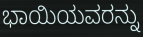
ಭಾಯಿಯವರನ್ನು